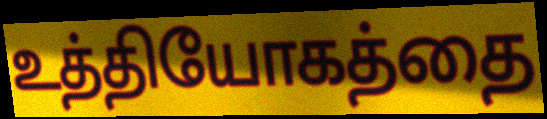
உத்தியோகத்தை